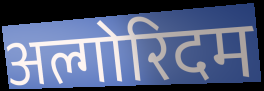
अल्गोरिदम